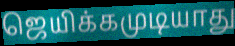
ஜெயிக்கமுடியாது